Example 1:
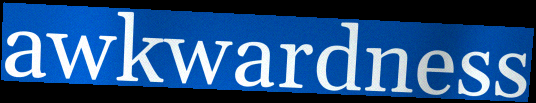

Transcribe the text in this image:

awkwardness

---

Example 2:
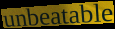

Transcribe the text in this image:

unbeatable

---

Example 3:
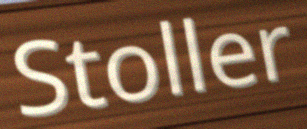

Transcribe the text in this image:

Stoller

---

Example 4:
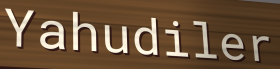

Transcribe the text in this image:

Yahudiler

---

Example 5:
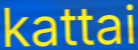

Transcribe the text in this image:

kattai